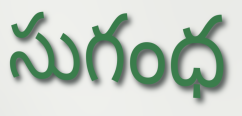
సుగంధ